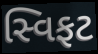
સ્વિફટ